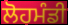
ਲੋਹਮੰਡੀ